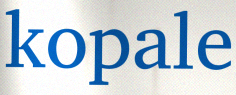
kopale